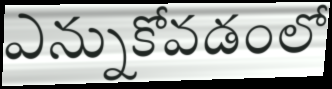
ఎన్నుకోవడంలో